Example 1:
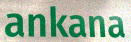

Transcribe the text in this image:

ankana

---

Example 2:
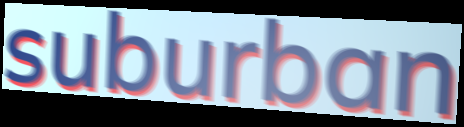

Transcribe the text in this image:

suburban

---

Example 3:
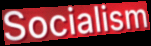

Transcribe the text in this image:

Socialism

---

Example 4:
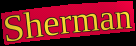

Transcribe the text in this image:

Sherman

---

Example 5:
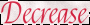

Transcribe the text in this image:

Decrease